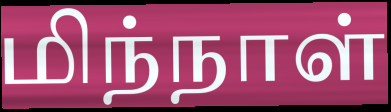
மிந்நாள்